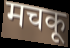
मचकू